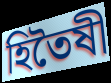
হিতৈষী